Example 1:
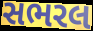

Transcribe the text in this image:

સભરલ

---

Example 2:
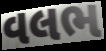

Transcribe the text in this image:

વલભ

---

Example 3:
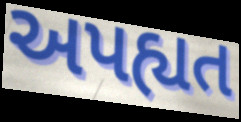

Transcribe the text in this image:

અપહ્યત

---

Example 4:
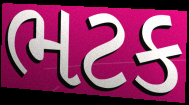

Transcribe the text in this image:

ભટક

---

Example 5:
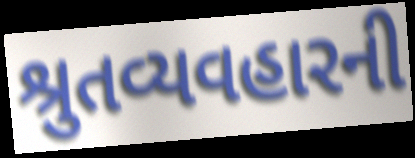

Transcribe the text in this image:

શ્રુતવ્યવહારની